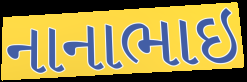
નાનાભાઇ